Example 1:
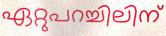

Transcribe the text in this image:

ഏറ്റുപറച്ചിലിന്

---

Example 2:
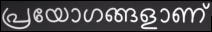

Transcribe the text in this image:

പ്രയോഗങ്ങളാണ്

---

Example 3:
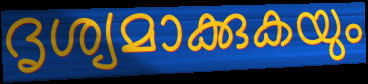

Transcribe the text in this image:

ദൃശ്യമാക്കുകയും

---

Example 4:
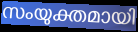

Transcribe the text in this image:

സംയുക്തമായി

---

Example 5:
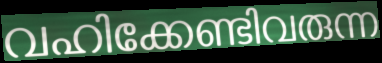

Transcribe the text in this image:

വഹിക്കേണ്ടിവരുന്ന